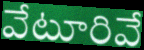
వేటూరివే